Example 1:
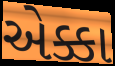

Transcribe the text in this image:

એક્કા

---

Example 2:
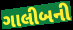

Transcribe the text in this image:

ગાલીબની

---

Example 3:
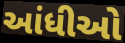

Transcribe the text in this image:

આંધીઓ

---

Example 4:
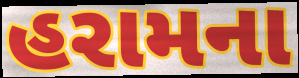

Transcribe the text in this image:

હરામના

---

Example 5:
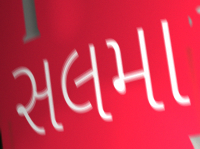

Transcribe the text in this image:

સલમા